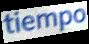
tiempo